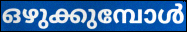
ഒഴുക്കുമ്പോൾ